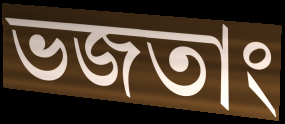
ভজতাং